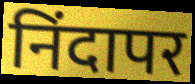
निंदापर